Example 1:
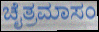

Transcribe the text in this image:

ಚೈತ್ರಮಾಸಂ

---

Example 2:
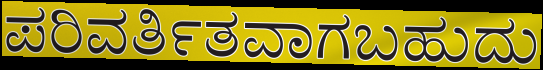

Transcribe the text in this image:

ಪರಿವರ್ತಿತವಾಗಬಹುದು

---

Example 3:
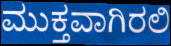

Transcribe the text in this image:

ಮುಕ್ತವಾಗಿರಲಿ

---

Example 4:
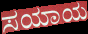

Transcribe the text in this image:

ಸಯಾಯ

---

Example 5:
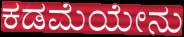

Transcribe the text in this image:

ಕಡಮೆಯೇನು